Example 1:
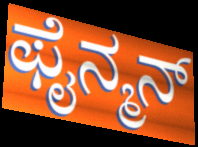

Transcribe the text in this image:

ಫೈನ್ಮನ್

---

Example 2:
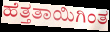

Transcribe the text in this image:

ಹೆತ್ತತಾಯಿಗಿಂತ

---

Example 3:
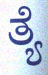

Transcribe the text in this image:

ತ್ಯೆ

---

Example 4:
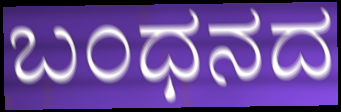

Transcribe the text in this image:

ಬಂಧನದ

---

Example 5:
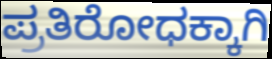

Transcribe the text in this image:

ಪ್ರತಿರೋಧಕ್ಕಾಗಿ